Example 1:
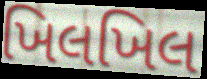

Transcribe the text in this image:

ખિલખિલ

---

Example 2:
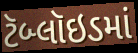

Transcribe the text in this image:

ટૅબ્લૉઇડમાં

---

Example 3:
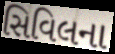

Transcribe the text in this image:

સિવિલના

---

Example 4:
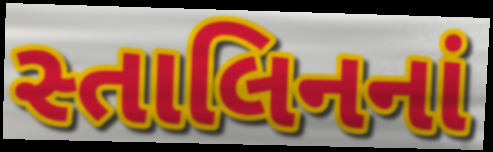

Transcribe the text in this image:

સ્તાલિનનાં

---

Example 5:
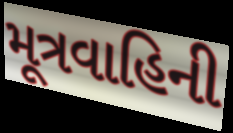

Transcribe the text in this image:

મૂત્રવાહિની